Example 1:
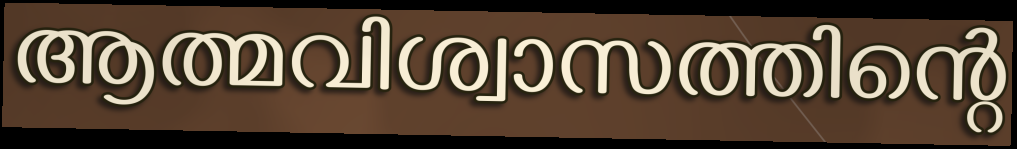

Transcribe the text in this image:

ആത്മവിശ്വാസത്തിന്റെ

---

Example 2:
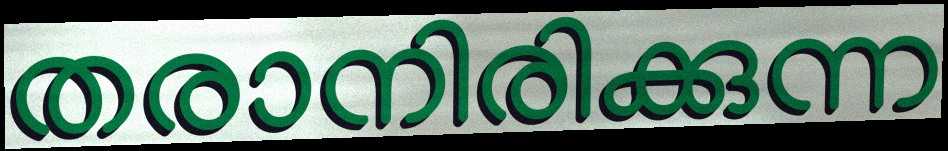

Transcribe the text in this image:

തരാനിരിക്കുന്ന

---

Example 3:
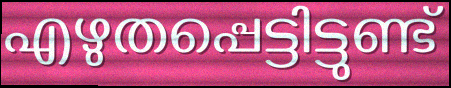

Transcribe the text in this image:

എഴുതപ്പെട്ടിട്ടുണ്ട്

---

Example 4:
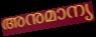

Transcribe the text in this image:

അനുമാന്യ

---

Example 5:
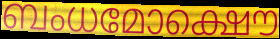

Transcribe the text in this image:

ബംധമോക്ഷൌ